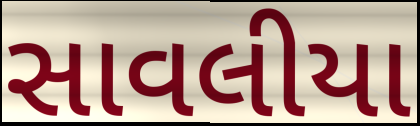
સાવલીયા